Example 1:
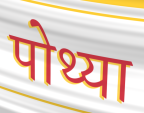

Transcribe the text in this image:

पोथ्या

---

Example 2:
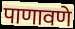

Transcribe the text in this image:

पाणावणे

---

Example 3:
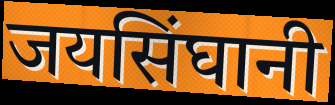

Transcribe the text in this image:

जयसिंघानी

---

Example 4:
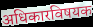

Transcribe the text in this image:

अधिकारविषयक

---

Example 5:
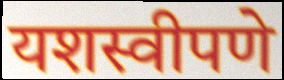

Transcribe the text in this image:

यशस्वीपणे